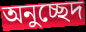
অনুচ্ছেদ